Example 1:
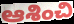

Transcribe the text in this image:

ఆశించి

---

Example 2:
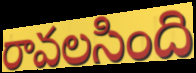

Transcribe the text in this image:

రావలసింది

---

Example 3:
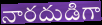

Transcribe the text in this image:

నారదుడిగా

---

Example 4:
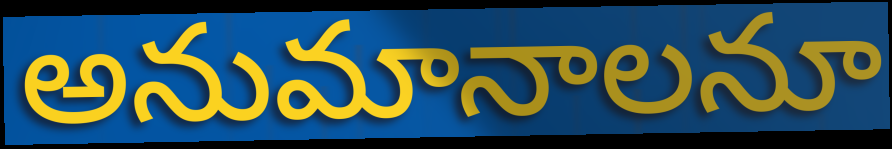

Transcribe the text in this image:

అనుమానాలనూ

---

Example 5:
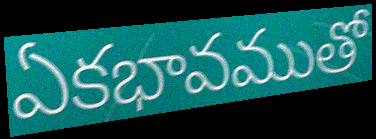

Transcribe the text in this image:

ఏకభావముతో